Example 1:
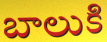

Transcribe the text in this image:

బాలుకి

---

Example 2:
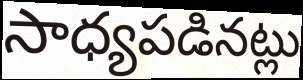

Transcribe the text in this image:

సాధ్యపడినట్లు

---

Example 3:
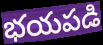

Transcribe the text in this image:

భయపడి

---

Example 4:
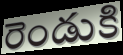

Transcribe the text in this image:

రెండుకి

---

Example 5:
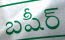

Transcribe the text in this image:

బషీర్